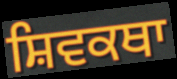
ਸ਼ਿਵਕਥਾ